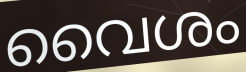
വൈശം